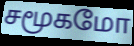
சமூகமோ